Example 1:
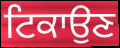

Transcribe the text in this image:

ਟਿਕਾਉਣ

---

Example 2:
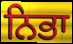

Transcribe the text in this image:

ਨਿਭਾ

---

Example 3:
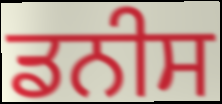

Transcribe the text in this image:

ਡਨੀਸ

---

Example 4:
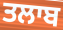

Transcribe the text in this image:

ਤਲਾਬ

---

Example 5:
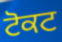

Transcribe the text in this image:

ਟੋਕਟ